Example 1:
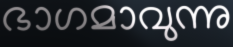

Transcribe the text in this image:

ഭാഗമാവുന്നു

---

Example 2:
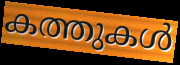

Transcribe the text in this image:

കത്തുകൾ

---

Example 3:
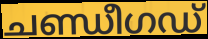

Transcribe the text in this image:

ചണ്ഡീഗഡ്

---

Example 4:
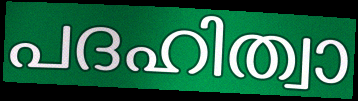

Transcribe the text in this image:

പദഹിത്വാ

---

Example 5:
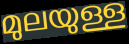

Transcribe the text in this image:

മുലയുള്ള